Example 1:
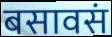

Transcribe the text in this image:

बसावसं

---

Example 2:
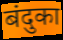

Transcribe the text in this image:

बंदुका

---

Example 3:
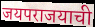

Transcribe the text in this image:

जयपराजयाची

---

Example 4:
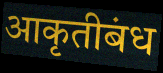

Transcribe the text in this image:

आकृतीबंध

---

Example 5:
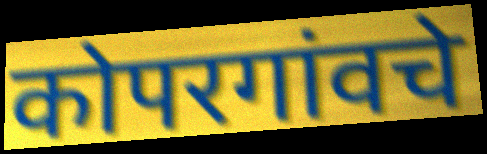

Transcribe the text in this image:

कोपरगांवचे